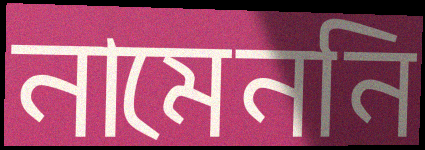
নামেননি